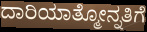
ದಾರಿಯಾತ್ಮೋನ್ನತಿಗೆ